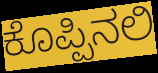
ಕೊಪ್ಪಿನಲಿ